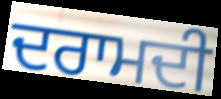
ਦਰਾਮਦੀ